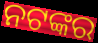
ନଟଙ୍କର